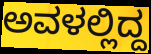
ಅವಳಲ್ಲಿದ್ದ